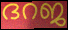
ദറജ